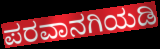
ಪರವಾನಗಿಯಡಿ